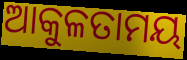
ଆକୁଳତାମୟ